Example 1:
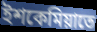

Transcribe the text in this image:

ইশকেমিয়াতে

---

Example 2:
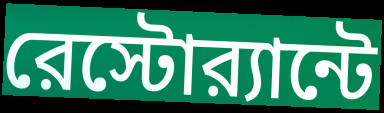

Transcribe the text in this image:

রেস্টোর‍্যান্টে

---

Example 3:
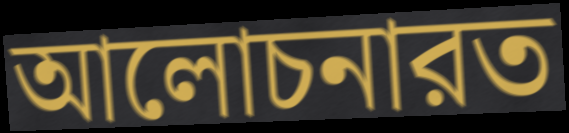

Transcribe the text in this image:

আলোচনারত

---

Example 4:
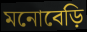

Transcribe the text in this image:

মনোবেড়ি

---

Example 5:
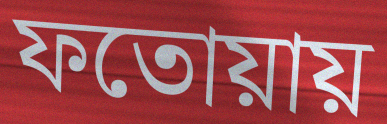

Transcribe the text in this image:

ফতোয়ায়